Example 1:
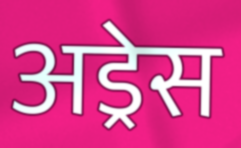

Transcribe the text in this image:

अड्रेस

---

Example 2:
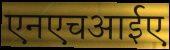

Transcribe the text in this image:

एनएचआईए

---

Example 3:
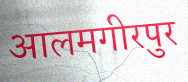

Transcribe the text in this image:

आलमगीरपुर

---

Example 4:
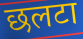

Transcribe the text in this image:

छलटा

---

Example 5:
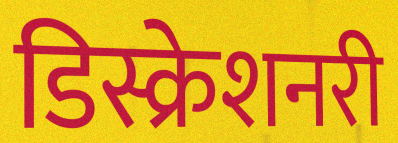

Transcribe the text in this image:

डिस्क्रेशनरी